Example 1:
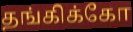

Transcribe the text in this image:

தங்கிக்கோ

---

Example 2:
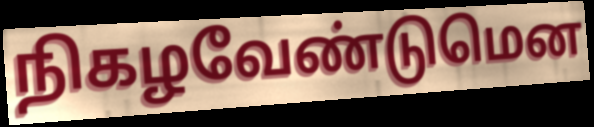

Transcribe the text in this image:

நிகழவேண்டுமென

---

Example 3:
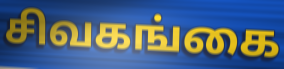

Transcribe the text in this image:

சிவகங்கை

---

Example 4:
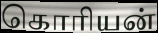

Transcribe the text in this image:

கொரியன்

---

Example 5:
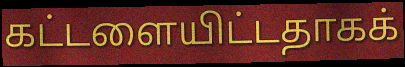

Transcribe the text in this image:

கட்டளையிட்டதாகக்